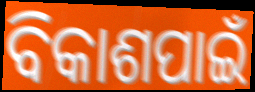
ବିକାଶପାଇଁ